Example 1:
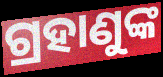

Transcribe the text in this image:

ଗ୍ରହାଣୁଙ୍କ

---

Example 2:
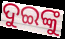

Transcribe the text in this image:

ଦୁଇଙ୍କୁ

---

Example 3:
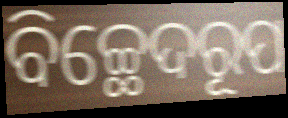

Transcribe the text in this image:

ବିଚ୍ଛେଦରୂପ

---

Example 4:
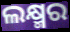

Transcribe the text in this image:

ଲକ୍ଷ୍ମର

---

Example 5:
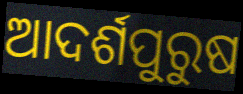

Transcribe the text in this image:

ଆଦର୍ଶପୁରୁଷ